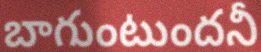
బాగుంటుందనీ